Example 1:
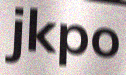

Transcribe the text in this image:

jkpo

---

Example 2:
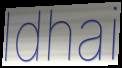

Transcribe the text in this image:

Idhai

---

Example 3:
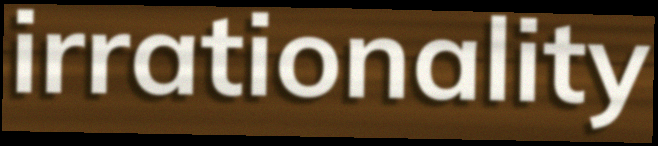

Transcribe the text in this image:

irrationality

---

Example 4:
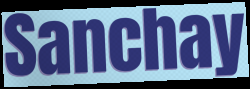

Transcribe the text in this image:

Sanchay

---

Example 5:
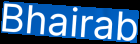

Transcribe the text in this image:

Bhairab